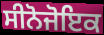
ਸੀਨੋਜੋਇਕ